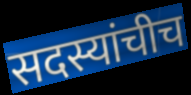
सदस्यांचीच